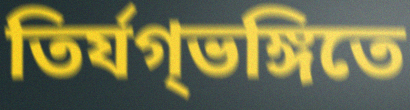
তির্যগ্ভঙ্গিতে